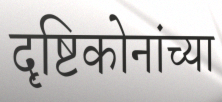
दृष्टिकोनांच्या